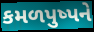
કમળપુષ્પને